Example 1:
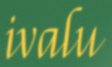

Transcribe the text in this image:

ivalu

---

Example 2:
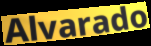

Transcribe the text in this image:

Alvarado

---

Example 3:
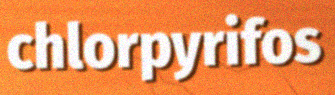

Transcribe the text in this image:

chlorpyrifos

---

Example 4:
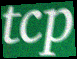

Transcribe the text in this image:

tcp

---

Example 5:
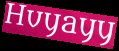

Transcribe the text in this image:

Huyayy